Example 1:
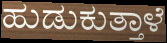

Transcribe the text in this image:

ಹುಡುಕುತ್ತಾಳೆ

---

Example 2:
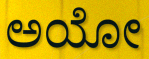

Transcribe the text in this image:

ಅಯೋ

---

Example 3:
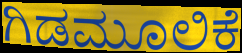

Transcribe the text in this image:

ಗಿಡಮೂಲಿಕೆ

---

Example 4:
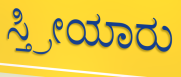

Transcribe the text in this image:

ಸ್ತ್ರೀಯಾರು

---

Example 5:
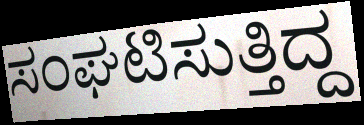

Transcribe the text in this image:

ಸಂಘಟಿಸುತ್ತಿದ್ದ